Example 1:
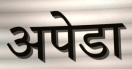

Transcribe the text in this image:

अपेडा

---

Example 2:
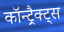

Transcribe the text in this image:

कॉन्ट्रैक्ट्स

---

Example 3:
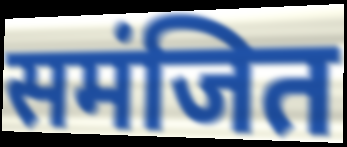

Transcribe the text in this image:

समंजित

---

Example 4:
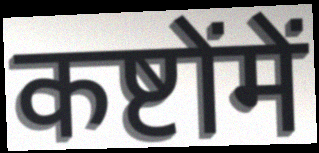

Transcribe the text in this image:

कष्टोंमें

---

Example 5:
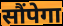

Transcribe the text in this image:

सौंपेगा